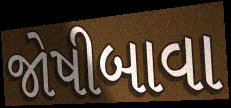
જોષીબાવા